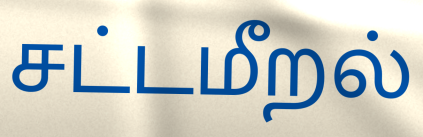
சட்டமீறல்